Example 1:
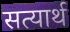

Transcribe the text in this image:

सत्यार्थ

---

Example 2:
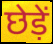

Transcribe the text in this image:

छेड़ें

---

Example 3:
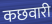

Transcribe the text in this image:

कछवारी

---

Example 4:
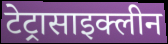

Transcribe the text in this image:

टेट्रासाइक्लीन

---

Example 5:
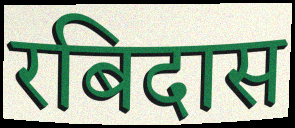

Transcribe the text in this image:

रबिदास